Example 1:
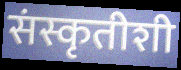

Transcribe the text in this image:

संस्कृतीशी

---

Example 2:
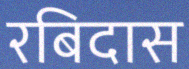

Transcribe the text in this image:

रबिदास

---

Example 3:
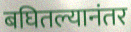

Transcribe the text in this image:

बघितल्यानंतर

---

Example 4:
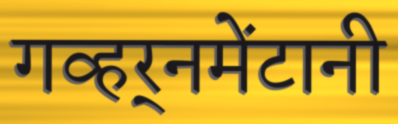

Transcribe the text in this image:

गव्हर्नमेंटानी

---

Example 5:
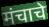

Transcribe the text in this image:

मंचाचे